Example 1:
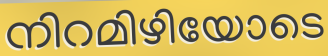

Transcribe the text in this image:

നിറമിഴിയോടെ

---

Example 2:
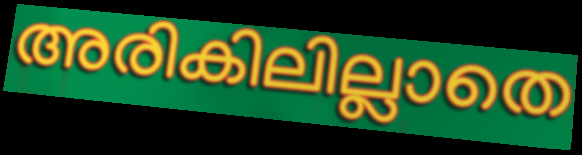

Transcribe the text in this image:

അരികിലില്ലാതെ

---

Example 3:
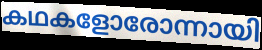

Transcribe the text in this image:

കഥകളോരോന്നായി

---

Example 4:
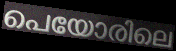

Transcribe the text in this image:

പെയോരിലെ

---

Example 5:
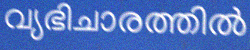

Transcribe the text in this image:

വ്യഭിചാരത്തിൽ